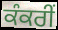
ਕੰਕਰੀਂ